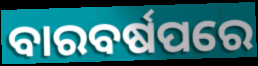
ବାରବର୍ଷପରେ